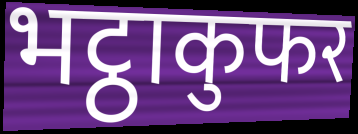
भट्ठाकुफर